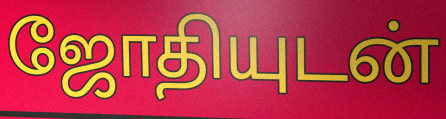
ஜோதியுடன்